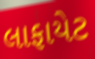
લાફાયેટ